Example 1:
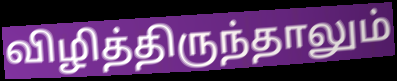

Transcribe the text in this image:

விழித்திருந்தாலும்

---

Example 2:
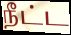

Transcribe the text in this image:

நீட்ட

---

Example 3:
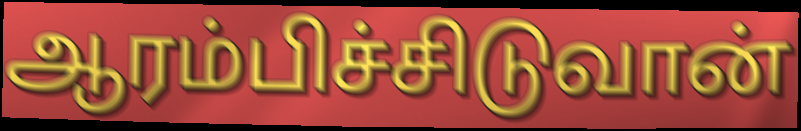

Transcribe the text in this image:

ஆரம்பிச்சிடுவான்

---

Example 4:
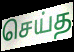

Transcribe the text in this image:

செய்த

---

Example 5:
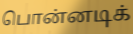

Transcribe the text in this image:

பொன்னடிக்